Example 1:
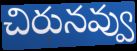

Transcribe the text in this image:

చిరునవ్వు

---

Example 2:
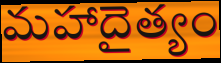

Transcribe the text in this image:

మహాదైత్యం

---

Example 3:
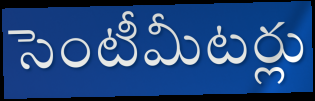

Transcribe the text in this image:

సెంటీమీటర్లు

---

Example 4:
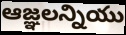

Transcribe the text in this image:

ఆజ్ఞలన్నియు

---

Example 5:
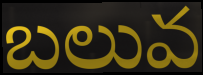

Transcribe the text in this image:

బలువ